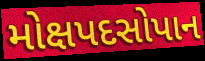
મોક્ષપદસોપાન